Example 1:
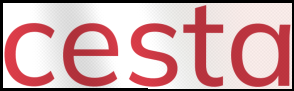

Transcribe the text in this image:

cesta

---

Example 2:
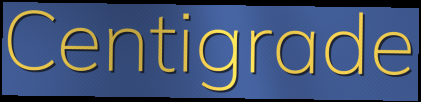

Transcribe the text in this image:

Centigrade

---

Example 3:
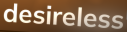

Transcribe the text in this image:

desireless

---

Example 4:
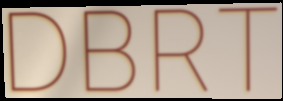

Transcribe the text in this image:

DBRT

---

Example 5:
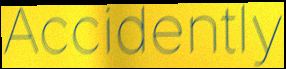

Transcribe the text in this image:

Accidently